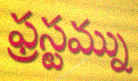
ఫ్రస్టమ్ను